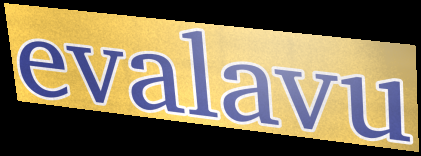
evalavu